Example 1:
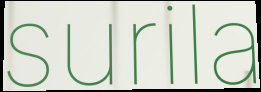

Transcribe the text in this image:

surila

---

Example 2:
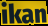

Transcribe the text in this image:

ikan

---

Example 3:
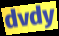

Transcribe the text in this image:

dvdy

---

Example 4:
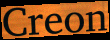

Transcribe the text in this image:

Creon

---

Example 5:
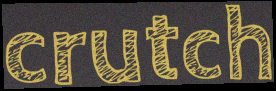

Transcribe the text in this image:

crutch